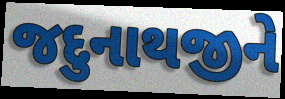
જદુનાથજીને